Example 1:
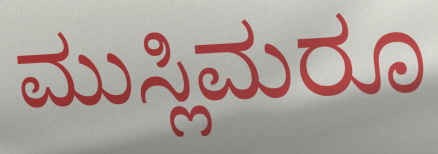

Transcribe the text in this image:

ಮುಸ್ಲಿಮರೂ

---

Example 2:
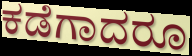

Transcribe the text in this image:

ಕಡೆಗಾದರೂ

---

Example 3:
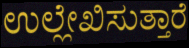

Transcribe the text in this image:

ಉಲ್ಲೇಖಿಸುತ್ತಾರೆ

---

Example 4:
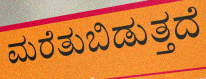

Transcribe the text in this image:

ಮರೆತುಬಿಡುತ್ತದೆ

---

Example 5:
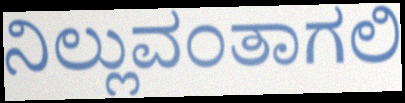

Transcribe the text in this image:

ನಿಲ್ಲುವಂತಾಗಲಿ